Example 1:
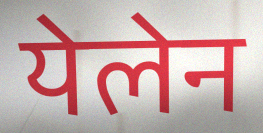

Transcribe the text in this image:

येलेन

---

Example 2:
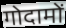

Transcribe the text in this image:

गोदामों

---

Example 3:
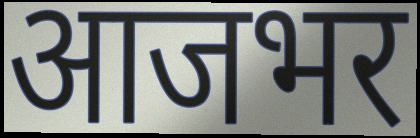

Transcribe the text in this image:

आजभर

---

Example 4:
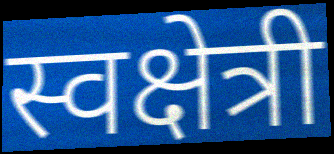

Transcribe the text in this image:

स्वक्षेत्री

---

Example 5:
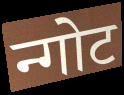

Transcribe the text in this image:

न्गोट